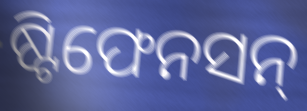
ଷ୍ଟିଫେନସନ୍